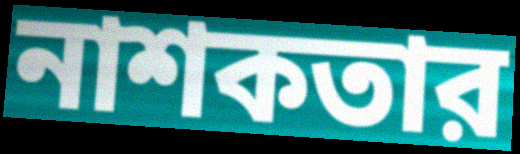
নাশকতার